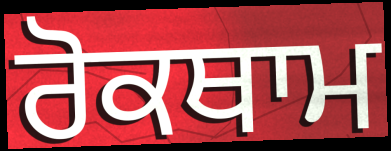
ਰੋਕਥਾਮ